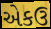
એકઉ